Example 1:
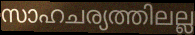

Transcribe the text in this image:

സാഹചര്യത്തിലല്ല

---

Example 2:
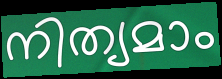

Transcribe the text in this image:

നിത്യമാം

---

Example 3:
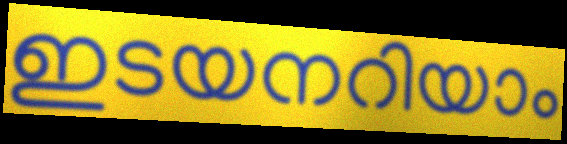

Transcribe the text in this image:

ഇടയനറിയാം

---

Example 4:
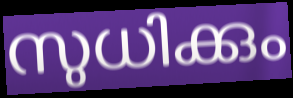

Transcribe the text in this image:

സുധിക്കും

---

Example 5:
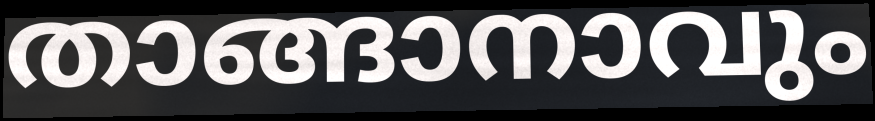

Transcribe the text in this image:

താങ്ങാനാവും